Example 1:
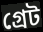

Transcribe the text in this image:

গ্রেট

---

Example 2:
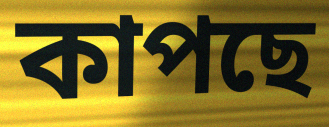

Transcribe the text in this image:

কাপছে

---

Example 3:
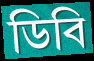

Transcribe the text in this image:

ডিবি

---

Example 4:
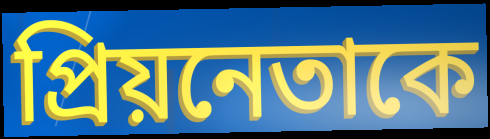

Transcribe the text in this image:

প্রিয়নেতাকে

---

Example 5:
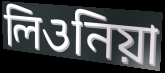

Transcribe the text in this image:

লিওনিয়া